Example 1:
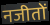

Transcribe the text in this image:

नजीतों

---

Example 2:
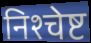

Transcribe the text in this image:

निश्चेष्ट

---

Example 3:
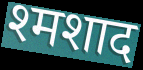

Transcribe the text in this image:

श्मशाद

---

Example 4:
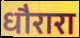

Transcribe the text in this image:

धौरारा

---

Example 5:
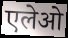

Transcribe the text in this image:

एलेओ